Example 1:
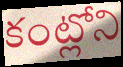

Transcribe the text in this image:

కంట్లోని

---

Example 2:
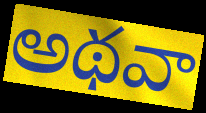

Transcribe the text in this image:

అథవా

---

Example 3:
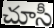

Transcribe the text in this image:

చూసీ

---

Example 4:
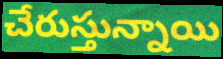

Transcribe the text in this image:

చేరుస్తున్నాయి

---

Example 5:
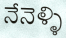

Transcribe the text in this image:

నేనెళ్ళి